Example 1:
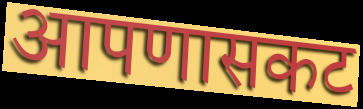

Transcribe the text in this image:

आपणासकट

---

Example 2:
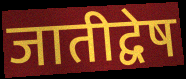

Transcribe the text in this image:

जातीद्वेष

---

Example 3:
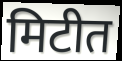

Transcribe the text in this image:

मिटीत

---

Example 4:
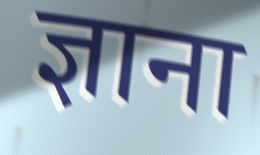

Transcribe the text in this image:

ज्ञाना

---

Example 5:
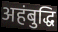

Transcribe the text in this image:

अहंबुद्धि